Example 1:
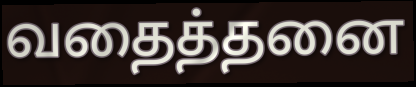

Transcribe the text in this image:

வதைத்தனை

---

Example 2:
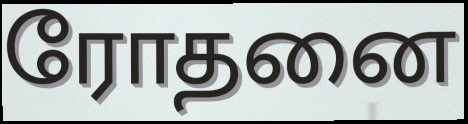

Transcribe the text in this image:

ரோதனை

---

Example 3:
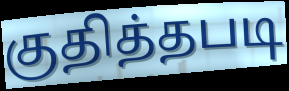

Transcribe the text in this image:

குதித்தபடி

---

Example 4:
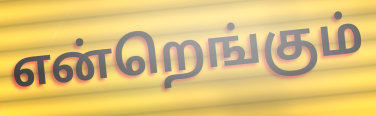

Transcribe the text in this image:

என்றெங்கும்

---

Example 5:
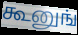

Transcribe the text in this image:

கூனுங்